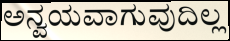
ಅನ್ವಯವಾಗುವುದಿಲ್ಲ